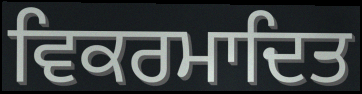
ਵਿਕਰਮਾਦਿਤ